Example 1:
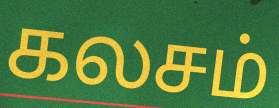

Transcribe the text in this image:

கலசம்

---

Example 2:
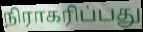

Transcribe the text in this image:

நிராகரிப்பது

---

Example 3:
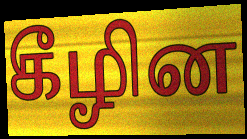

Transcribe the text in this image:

கீழின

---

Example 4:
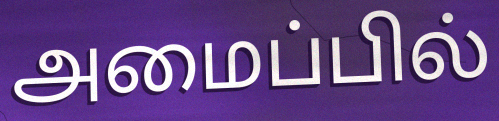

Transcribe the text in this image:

அமைப்பில்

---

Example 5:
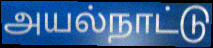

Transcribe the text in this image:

அயல்நாட்டு